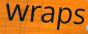
wraps